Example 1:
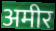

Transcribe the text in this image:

अमीर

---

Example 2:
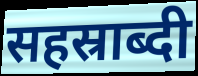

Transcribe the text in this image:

सहस्राब्दी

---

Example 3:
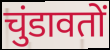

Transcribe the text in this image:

चुंडावतों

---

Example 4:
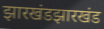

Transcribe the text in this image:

झारखंडझारखंड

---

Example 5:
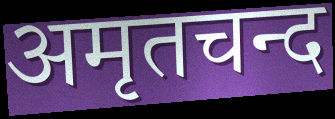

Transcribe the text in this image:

अमृतचन्द